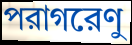
পরাগরেণু